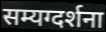
सम्यग्दर्शना